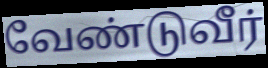
வேண்டுவீர்